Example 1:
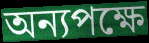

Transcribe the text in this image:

অন্যপক্ষে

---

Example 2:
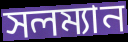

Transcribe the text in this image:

সলম্যান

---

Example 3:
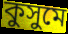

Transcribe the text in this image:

কুসুমে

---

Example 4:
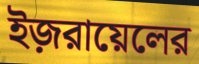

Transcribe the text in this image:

ইজ়রায়েলের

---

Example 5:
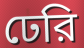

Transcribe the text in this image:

ঢেরি